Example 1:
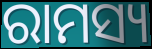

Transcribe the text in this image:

ରାମସ୍ୟ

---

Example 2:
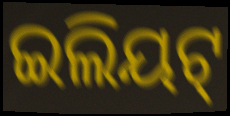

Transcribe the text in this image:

ଇଲିୟଟ୍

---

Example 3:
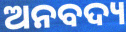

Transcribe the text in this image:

ଅନବଦ୍ୟ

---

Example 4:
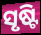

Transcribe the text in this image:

ସୃଷ୍ଟି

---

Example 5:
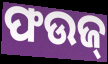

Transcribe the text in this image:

ଫଉଜ୍